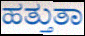
ಹತ್ತುತಾ